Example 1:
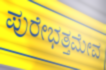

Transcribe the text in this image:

ಪುರೇಭತ್ತಮೇವ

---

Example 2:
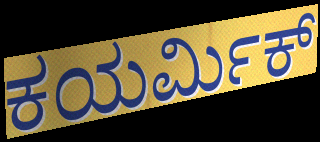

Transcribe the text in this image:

ಕಯರ್ಮಿಕ್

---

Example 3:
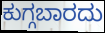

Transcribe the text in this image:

ಕುಗ್ಗಬಾರದು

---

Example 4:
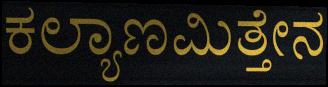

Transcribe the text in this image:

ಕಲ್ಯಾಣಮಿತ್ತೇನ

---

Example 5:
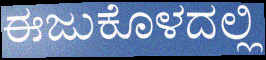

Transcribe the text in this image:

ಈಜುಕೊಳದಲ್ಲಿ